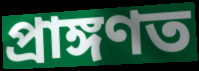
প্ৰাঙ্গণত